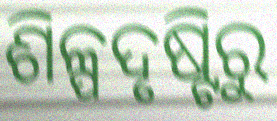
ଶିଳ୍ପଦୃଷ୍ଟିରୁ